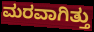
ಮರವಾಗಿತ್ತು